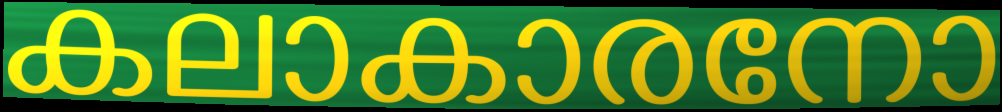
കലാകാരനോ